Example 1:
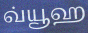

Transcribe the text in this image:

வ்யூஹ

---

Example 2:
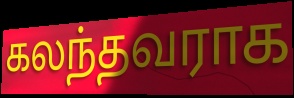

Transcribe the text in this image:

கலந்தவராக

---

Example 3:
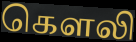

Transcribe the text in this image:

கௌலி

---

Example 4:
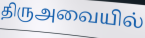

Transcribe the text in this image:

திருஅவையில்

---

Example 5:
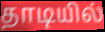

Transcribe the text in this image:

தாடியில்